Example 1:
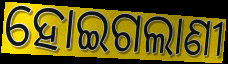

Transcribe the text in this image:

ହୋଇଗଲାଣୀ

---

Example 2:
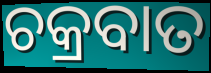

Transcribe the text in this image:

ଚକ୍ରବାତ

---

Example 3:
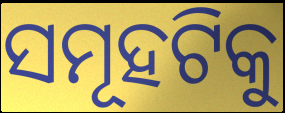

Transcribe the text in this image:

ସମୂହଟିକୁ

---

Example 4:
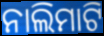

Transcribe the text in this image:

ନାଲିମାଟି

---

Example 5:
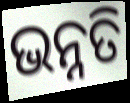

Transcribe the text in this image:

ଭନ୍ନତି